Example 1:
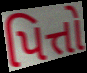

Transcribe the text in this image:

પિત્તો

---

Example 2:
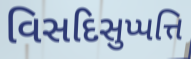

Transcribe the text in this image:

વિસદિસુપ્પત્તિ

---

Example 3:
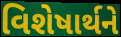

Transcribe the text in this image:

વિશેષાર્થને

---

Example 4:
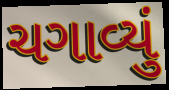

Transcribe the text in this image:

ચગાવ્યું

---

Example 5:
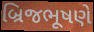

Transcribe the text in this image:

બ્રિજભૂષણે